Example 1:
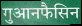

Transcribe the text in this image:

गुआनफैसिन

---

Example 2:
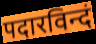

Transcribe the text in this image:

पदारविन्दं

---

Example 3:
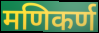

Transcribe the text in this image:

मणिकर्ण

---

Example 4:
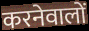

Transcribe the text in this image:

करनेवालों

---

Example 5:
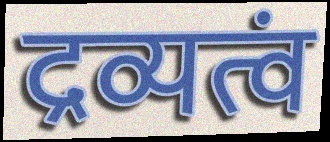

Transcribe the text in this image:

द्रव्यत्वं